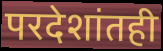
परदेशांतही